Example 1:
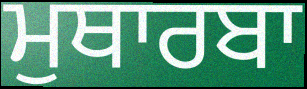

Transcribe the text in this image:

ਮੁਥਾਰਬਾ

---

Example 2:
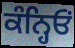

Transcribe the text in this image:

ਕੰਨ੍ਹਿਓਂ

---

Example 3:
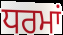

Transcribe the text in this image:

ਧਰਮਾਂ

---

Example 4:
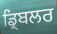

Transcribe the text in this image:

ਡ੍ਰਿਬਲਰ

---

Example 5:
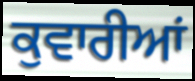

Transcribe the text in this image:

ਕੁਵਾਰੀਆਂ